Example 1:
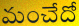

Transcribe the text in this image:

మంచేదో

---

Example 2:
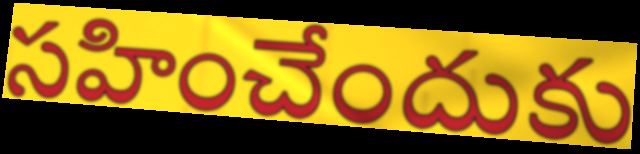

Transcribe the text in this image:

సహించేందుకు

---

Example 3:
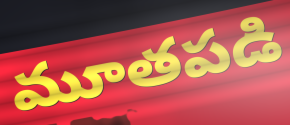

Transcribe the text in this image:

మూతపడి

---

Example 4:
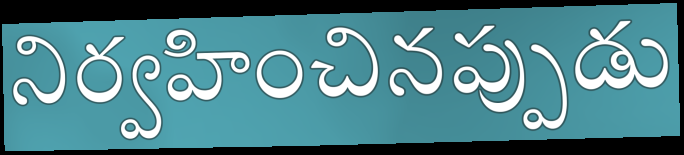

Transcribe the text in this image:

నిర్వహించినప్పుడు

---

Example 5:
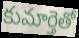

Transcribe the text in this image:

కుమార్తెతో